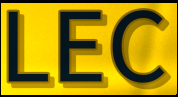
LEC